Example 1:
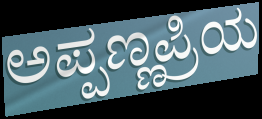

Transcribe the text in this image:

ಅಪ್ಪಣ್ಣಪ್ರಿಯ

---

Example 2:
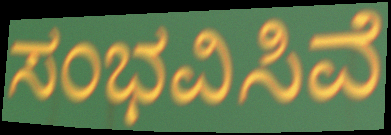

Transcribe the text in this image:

ಸಂಭವಿಸಿವೆ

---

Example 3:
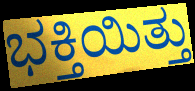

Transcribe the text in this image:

ಭಕ್ತಿಯಿತ್ತು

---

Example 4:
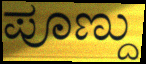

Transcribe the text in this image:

ಪೂಣ್ದು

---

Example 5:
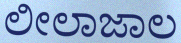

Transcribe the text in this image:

ಲೀಲಾಜಾಲ